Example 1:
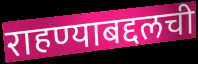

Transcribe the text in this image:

राहण्याबद्दलची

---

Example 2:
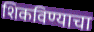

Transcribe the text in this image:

शिकविण्याचा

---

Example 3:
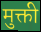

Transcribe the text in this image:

मुक्ती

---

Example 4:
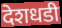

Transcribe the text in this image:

देशधडी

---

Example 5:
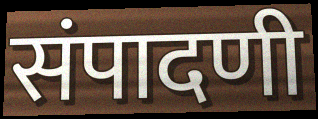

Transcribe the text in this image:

संपादणी